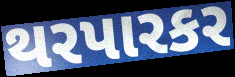
થરપારકર